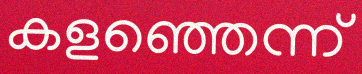
കളഞ്ഞെന്ന്